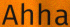
Ahha